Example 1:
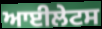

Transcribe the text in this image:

ਆਈਲੇਟਸ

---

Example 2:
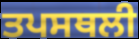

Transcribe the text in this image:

ਤਪਸਥਲੀ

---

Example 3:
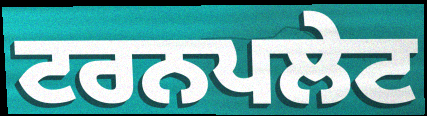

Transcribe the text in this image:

ਟਰਨਪਲੇਟ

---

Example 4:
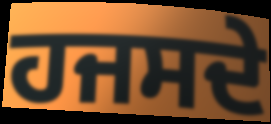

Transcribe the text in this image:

ਹਜਸਦੇ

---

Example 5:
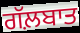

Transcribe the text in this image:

ਗੱਲ਼ਬਾਤ